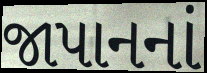
જાપાનનાં